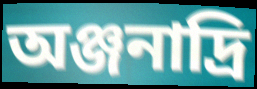
অঞ্জনাদ্রি